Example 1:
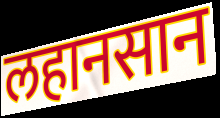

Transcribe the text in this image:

लहानसान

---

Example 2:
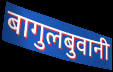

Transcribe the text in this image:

बागुलबुवानी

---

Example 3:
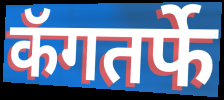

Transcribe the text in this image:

कॅगतर्फे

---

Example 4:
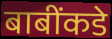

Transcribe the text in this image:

बाबींकडे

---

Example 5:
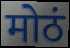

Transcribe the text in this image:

मोठं